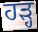
ਹੜ੍ਹ